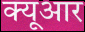
क्‍यूआर